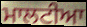
ਮਾਲਟੀਆ